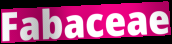
Fabaceae